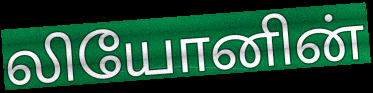
லியோனின்